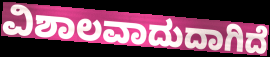
ವಿಶಾಲವಾದುದಾಗಿದೆ